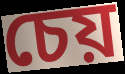
চেয়